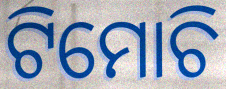
ଟିମୋଚି